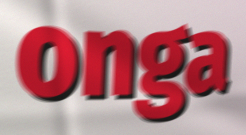
onga